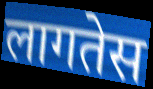
लागतेस